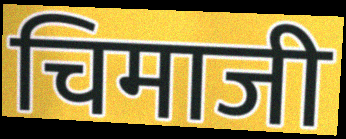
चिमाजी